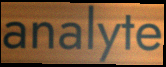
analyte